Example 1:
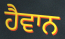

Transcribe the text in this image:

ਹੈਵਾਨ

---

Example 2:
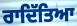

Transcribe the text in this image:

ਰਾਦਿੱਤਿਆ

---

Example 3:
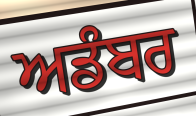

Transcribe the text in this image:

ਅਡੰਬਰ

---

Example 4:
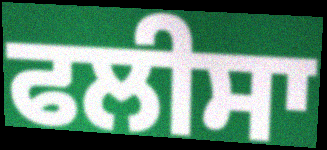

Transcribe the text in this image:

ਫਲੀਸਾ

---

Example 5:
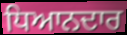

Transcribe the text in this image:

ਧਿਆਨਦਾਰ